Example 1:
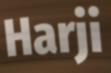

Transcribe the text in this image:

Harji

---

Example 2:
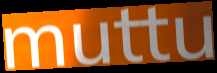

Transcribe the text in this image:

muttu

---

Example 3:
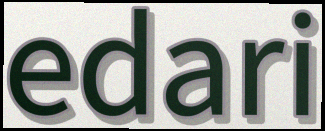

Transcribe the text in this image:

edari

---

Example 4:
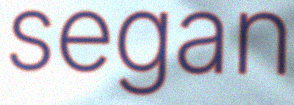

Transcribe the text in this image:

segan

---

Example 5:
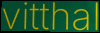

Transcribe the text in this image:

vitthal